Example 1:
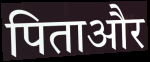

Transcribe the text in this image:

पिताऔर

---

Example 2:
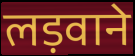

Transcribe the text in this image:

लड़वाने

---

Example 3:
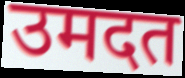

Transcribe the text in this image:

उमदत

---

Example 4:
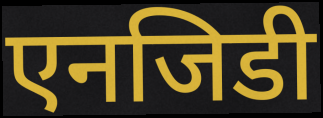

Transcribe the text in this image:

एनजिडी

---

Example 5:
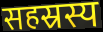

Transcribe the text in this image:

सहस्रस्य